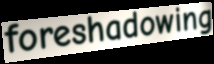
foreshadowing